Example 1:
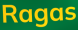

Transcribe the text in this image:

Ragas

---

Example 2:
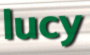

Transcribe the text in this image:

lucy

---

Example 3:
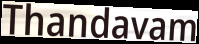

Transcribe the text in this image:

Thandavam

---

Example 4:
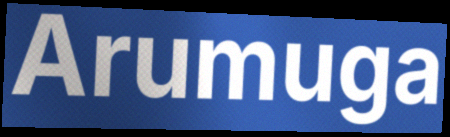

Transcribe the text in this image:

Arumuga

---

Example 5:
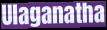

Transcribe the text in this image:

Ulaganatha